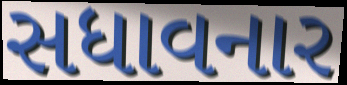
સધાવનાર